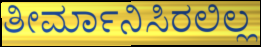
ತೀರ್ಮಾನಿಸಿರಲಿಲ್ಲ